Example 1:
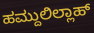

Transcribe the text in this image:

ಹಮ್ದುಲಿಲ್ಲಾಹ್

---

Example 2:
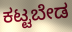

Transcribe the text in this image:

ಕಟ್ಟಬೇಡ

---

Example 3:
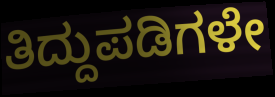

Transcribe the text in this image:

ತಿದ್ದುಪಡಿಗಳೇ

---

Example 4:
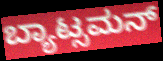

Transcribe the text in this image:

ಬ್ಯಾಟ್ಸಮನ್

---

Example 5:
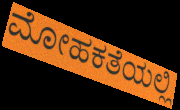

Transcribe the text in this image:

ಮೋಹಕತೆಯಲ್ಲಿ